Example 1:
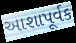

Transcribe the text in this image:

આશાપૂર્વક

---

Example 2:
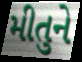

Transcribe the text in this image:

મીતુને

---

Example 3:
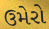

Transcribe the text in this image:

ઉમેરો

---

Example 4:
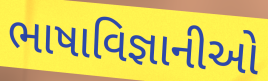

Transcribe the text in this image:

ભાષાવિજ્ઞાનીઓ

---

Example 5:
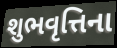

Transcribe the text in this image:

શુભવૃત્તિના